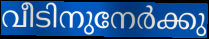
വീടിനുനേർക്കു